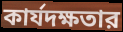
কার্যদক্ষতার